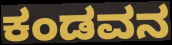
ಕಂಡವನ